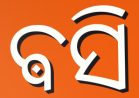
ଵସି